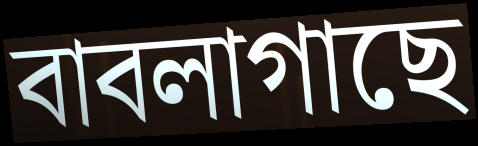
বাবলাগাছে